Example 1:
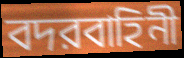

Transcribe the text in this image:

বদরবাহিনী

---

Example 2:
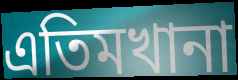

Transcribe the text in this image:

এতিমখানা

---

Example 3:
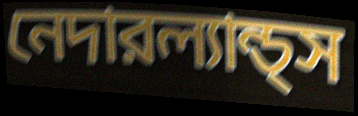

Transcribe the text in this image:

নেদারল্যান্ড্‌স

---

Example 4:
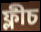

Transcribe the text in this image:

ফ্লীচ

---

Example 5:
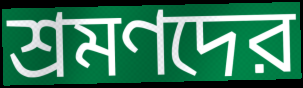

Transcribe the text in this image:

শ্রমণদের